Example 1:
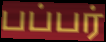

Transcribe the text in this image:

பப்பர்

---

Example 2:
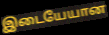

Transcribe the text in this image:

இடையேயான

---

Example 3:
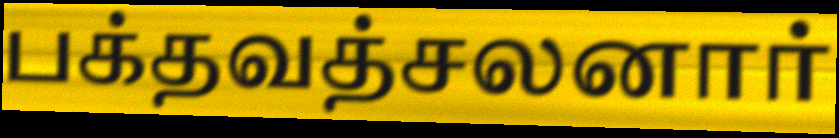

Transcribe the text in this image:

பக்தவத்சலனார்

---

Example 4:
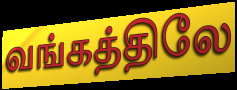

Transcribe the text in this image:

வங்கத்திலே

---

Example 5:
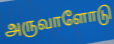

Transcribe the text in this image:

அருவாளோடு